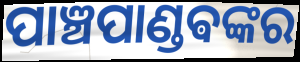
ପାଞ୍ଚପାଣ୍ଡଵଙ୍କର